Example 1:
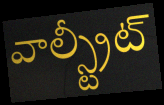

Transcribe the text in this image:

వాల్స్ట్రీట్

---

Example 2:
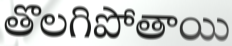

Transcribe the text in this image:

తొలగిపోతాయి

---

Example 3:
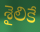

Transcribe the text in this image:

శైలికే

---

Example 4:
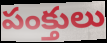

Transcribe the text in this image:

పంక్తులు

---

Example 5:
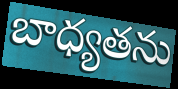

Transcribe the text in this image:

బాధ్యతను